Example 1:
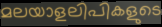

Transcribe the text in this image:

മലയാളലിപികളുടെ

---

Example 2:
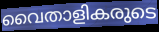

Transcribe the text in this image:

വൈതാളികരുടെ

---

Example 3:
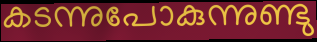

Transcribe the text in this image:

കടന്നുപോകുന്നുണ്ടു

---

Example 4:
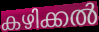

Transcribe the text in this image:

കഴിക്കൽ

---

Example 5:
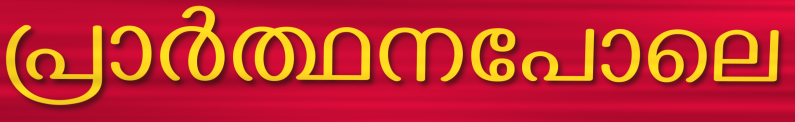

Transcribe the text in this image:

പ്രാർത്ഥനപോലെ